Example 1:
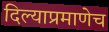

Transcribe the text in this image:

दिल्याप्रमाणेच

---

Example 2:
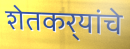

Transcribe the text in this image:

शेतकर्‍यांचे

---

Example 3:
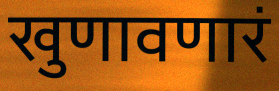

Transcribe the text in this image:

खुणावणारं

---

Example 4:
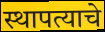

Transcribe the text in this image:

स्थापत्याचे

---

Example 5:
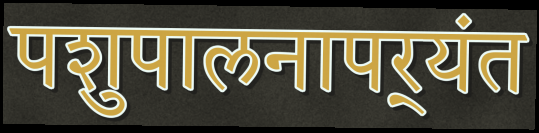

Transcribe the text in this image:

पशुपालनापर्यंत